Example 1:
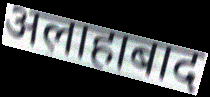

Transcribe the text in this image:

अलाहाबाद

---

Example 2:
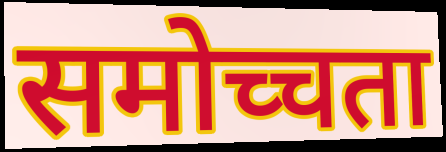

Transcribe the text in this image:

समोच्चता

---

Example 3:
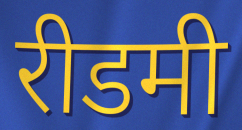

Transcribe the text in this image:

रीडमी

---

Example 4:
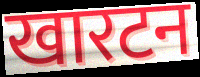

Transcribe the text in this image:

खारटन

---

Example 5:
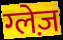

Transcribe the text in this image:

ग्लेज़